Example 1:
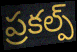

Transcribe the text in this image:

ప్రకల్ప్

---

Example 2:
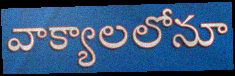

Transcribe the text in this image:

వాక్యాలలోనూ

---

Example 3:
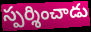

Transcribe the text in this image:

స్పర్శించాడు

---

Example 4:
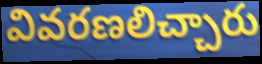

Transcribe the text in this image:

వివరణలిచ్చారు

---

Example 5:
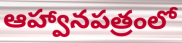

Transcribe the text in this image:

ఆహ్వానపత్రంలో